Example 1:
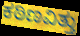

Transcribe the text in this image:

ಕಠಿಣವಿತ್ತು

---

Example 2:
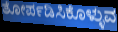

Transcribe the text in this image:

ತೋರ್ಪಡಿಸಿಕೊಳ್ಳುವ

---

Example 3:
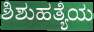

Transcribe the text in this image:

ಶಿಶುಹತ್ಯೆಯ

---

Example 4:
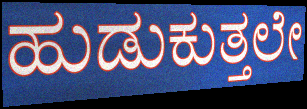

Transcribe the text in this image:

ಹುಡುಕುತ್ತಲೇ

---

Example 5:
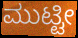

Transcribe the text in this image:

ಮುಟ್ಟೀ